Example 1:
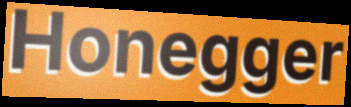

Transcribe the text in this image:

Honegger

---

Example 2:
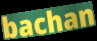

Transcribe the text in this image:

bachan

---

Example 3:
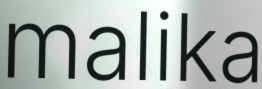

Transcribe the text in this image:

malika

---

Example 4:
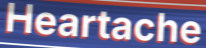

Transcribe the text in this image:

Heartache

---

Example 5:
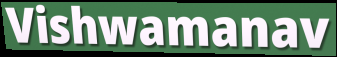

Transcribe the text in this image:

Vishwamanav